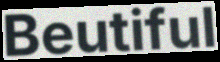
Beutiful